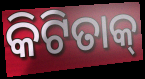
କିଟିତାକ୍